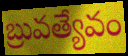
బ్రువత్యేవం